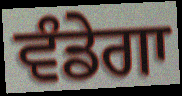
ਵੰਡੇਗਾ